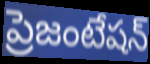
ప్రెజంటేషన్